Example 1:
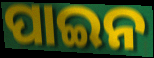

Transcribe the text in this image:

ପାଇନ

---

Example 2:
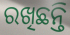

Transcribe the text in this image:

ରଖିଛନ୍ତି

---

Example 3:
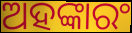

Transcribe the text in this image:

ଅହଙ୍କାରଂ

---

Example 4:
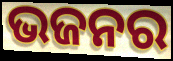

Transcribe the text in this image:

ଭଜନର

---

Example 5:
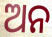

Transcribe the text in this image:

ଅନ